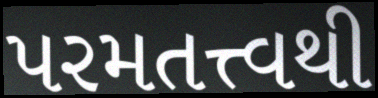
પરમતત્ત્વથી